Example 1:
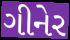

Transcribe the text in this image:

ગીનેર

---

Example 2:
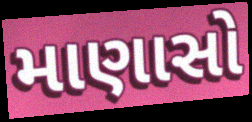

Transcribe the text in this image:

માણાસો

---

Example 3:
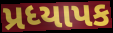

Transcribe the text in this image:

પ્રધ્યાપક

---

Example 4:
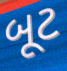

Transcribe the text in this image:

બૂટ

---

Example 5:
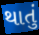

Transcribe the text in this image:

થાતું